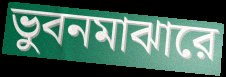
ভুবনমাঝারে